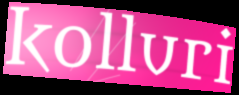
kolluri